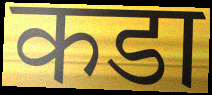
कडा